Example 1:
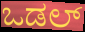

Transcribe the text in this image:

ಒಡಲ್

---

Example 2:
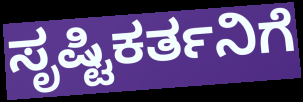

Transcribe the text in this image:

ಸೃಷ್ಟಿಕರ್ತನಿಗೆ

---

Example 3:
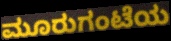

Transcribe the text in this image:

ಮೂರುಗಂಟೆಯ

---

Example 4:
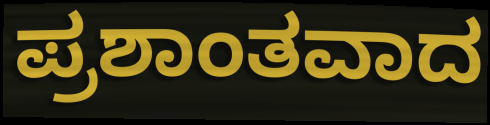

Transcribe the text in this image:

ಪ್ರಶಾಂತವಾದ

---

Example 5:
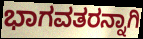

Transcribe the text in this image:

ಭಾಗವತರನ್ನಾಗಿ